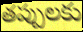
తప్పులకు